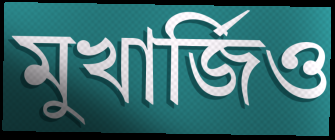
মুখার্জিও